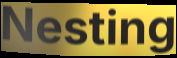
Nesting